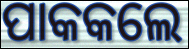
ପାକକଲେ